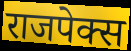
राजपेक्स